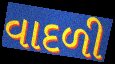
વાદળી